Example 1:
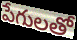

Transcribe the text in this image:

పేగులతో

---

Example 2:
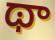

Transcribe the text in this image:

థా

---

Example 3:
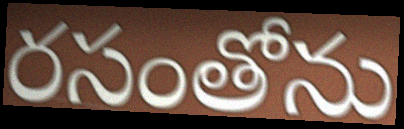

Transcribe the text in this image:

రసంతోను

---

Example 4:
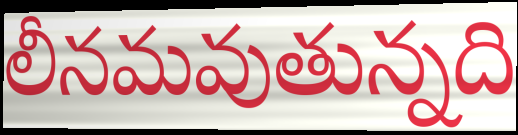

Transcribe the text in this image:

లీనమవుతున్నది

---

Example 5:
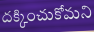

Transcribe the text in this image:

దక్కించుకోమని